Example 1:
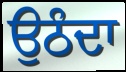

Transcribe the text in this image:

ਉਠੰਦਾ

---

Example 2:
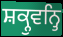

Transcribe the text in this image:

ਸ਼ਕ੍ਨੁਵਨ੍ਤਿ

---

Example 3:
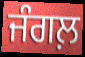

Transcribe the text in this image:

ਜੰਗਲ਼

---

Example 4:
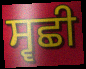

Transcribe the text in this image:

ਸ੍ਵਛੀ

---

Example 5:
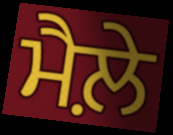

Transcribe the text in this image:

ਮੈਲ਼ੇ